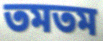
তমতম